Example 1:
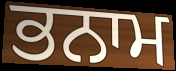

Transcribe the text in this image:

ਭਨਾਮ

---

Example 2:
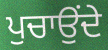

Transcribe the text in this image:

ਪੁਚਾਉਂਦੇ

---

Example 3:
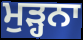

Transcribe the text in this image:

ਮੁੜ੍ਹਨਾ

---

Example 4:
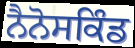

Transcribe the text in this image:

ਨੈਨੋਸਕਿੰਡ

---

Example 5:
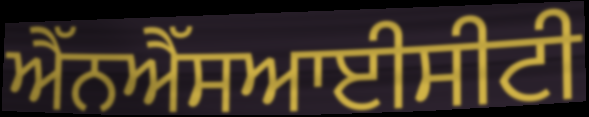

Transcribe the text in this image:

ਐੱਨਐੱਸਆਈਸੀਟੀ